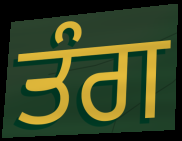
ਤੰਗ